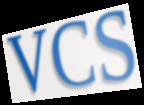
VCS